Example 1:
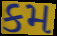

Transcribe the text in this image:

કમ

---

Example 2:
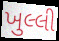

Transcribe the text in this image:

ખુલ્લી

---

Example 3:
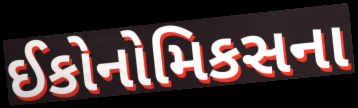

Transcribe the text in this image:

ઈકોનોમિકસના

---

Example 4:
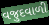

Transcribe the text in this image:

વજુદવાળી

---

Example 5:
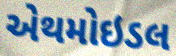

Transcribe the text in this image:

એથમોઇડલ